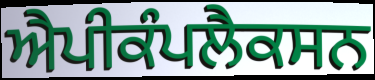
ਐਪੀਕੰਪਲੈਕਸਨ